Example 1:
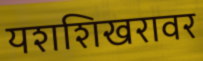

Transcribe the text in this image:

यशशिखरावर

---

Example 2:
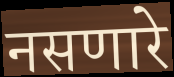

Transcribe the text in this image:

नसणारे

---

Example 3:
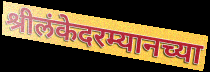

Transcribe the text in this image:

श्रीलंकेदरम्यानच्या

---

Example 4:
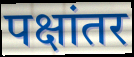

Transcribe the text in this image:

पक्षांतर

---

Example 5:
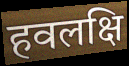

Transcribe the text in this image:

हवलक्षि